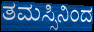
ತಮಸ್ಸಿನಿಂದ